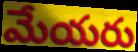
మేయరు